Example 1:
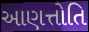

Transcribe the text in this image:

આણત્તોતિ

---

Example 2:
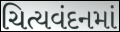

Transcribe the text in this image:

ચિત્યવંદનમાં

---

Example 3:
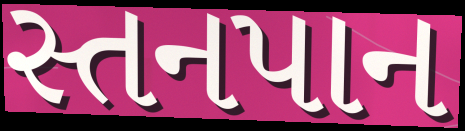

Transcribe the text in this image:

સ્તનપાન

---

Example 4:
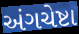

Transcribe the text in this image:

અંગચેષ્ટા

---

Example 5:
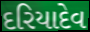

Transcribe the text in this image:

દરિયાદેવ